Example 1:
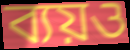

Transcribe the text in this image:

ব্যয়ও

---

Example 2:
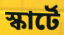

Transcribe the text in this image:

স্কার্টে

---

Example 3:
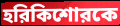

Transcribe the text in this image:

হরিকিশোরকে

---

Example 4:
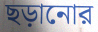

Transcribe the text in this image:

ছড়ানোর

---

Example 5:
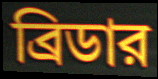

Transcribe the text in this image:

ব্রিডার